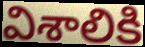
విశాలికి